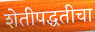
शेतीपद्धतीचा